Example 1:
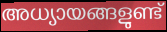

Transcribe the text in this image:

അധ്യായങ്ങളുണ്ട്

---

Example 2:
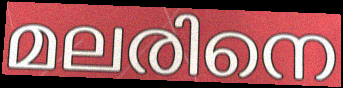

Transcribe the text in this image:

മലരിനെ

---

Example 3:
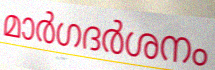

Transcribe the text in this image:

മാർഗദർശനം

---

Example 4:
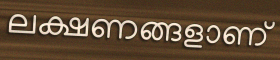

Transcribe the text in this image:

ലക്ഷണങ്ങളാണ്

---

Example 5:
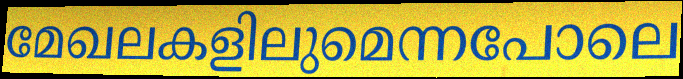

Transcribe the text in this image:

മേഖലകളിലുമെന്നപോലെ